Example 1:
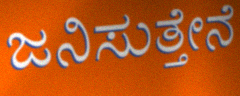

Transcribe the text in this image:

ಜನಿಸುತ್ತೇನೆ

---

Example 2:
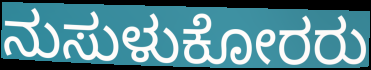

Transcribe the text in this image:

ನುಸುಳುಕೋರರು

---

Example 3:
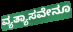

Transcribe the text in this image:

ವ್ಯತ್ಯಾಸವೇನೂ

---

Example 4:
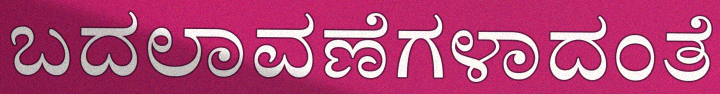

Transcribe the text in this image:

ಬದಲಾವಣೆಗಳಾದಂತೆ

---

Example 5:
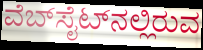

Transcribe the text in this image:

ವೆಬ್‌ಸೈಟ್‌ನಲ್ಲಿರುವ